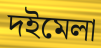
দইমেলা